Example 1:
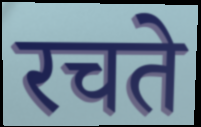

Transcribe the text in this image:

रचते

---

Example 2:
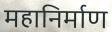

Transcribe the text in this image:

महानिर्माण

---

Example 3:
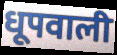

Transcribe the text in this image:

धूपवाली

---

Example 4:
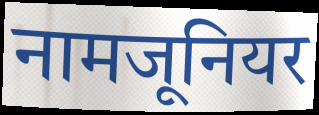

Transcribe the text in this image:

नामजूनियर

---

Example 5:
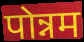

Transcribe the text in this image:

पोन्नम